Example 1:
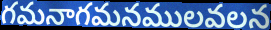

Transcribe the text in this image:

గమనాగమనములవలన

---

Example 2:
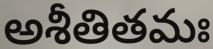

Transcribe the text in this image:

అశీతితమః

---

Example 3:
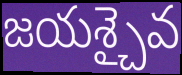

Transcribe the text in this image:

జయశ్చైవ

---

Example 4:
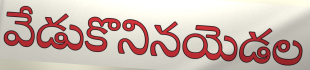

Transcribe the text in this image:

వేడుకొనినయెడల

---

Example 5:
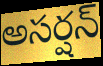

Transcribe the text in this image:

అసర్షన్